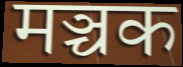
मञ्चक